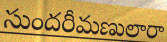
సుందరీమణులారా